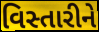
વિસ્તારીને